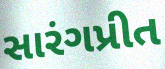
સારંગપ્રીત